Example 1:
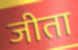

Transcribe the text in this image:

जीता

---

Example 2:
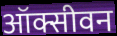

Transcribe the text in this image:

ऑक्सीवन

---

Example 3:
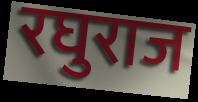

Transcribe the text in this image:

रघुराज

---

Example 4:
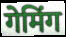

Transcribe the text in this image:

गेमिंग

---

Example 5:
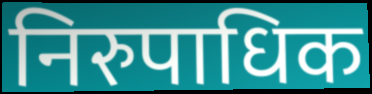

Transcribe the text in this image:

निरुपाधिक